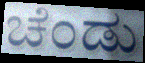
ಚೆಂಡು